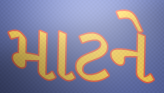
માટને